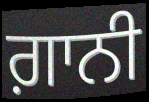
ਗ਼ਾਨੀ